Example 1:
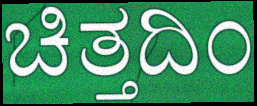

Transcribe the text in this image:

ಚಿತ್ತದಿಂ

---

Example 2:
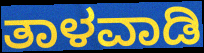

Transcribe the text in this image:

ತಾಳವಾಡಿ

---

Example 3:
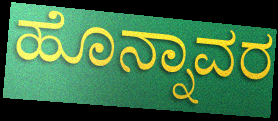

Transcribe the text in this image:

ಹೊನ್ನಾವರ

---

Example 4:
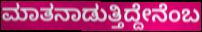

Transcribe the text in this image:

ಮಾತನಾಡುತ್ತಿದ್ದೇನೆಂಬ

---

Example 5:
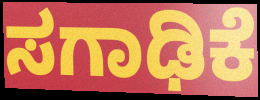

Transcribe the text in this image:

ಸಗಾಢಿಕೆ